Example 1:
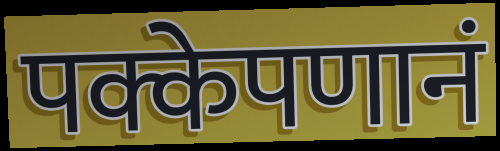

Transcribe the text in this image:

पक्केपणानं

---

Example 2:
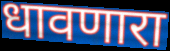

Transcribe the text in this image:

धावणारा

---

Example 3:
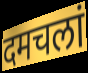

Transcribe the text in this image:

दमचलां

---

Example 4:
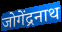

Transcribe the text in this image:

जोगेंद्रनाथ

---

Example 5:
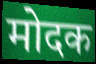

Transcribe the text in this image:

मोदक